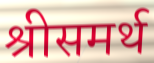
श्रीसमर्थ